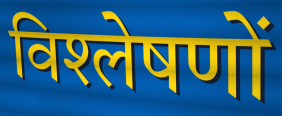
विश्लेषणों